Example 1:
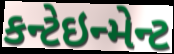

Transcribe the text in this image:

કન્ટેઇન્મેન્ટ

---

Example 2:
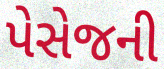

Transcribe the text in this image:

પેસેજની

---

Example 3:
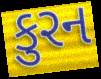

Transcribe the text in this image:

કુરન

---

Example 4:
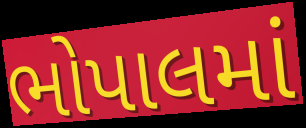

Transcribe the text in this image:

ભોપાલમાં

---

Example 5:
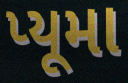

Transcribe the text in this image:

પ્યૂમા